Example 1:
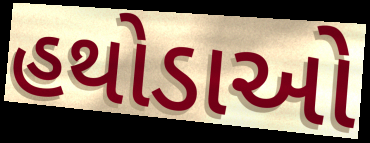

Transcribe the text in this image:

હથોડાઓ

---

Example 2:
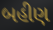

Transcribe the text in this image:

બહીણ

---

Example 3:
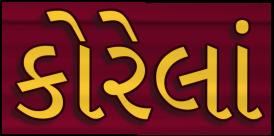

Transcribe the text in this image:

કોરેલાં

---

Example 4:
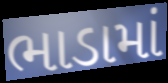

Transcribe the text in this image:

ભાડામાં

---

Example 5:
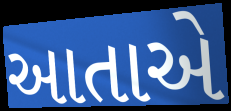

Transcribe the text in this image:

આતાએ